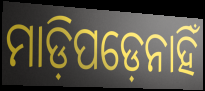
ମାଡ଼ିପଡ଼େନାହିଁ